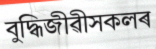
বুদ্ধিজীৱীসকলৰ